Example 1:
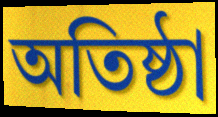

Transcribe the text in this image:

অতিষ্ঠা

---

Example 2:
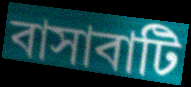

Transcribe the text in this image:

বাসাবাটি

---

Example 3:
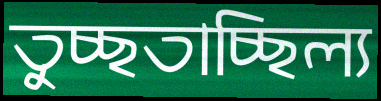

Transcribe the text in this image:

তুচ্ছতাচ্ছিল্য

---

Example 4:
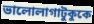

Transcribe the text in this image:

ভালোলাগাটুকুকে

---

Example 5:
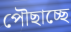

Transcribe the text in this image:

পৌছাচ্ছে